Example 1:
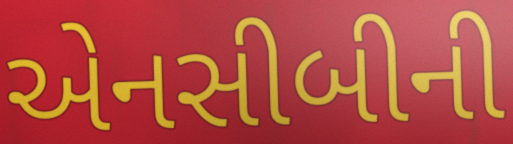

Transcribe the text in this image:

એનસીબીની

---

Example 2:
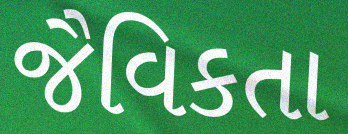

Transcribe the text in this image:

જૈવિકતા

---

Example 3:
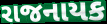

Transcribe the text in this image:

રાજનાયક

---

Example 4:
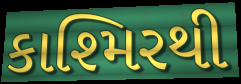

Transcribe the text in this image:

કાશ્મિરથી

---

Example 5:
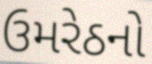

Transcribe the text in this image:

ઉમરેઠનો